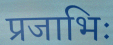
प्रजाभिः